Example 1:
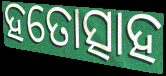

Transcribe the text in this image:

ହତୋତ୍ସାହ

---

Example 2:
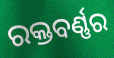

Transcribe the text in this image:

ରକ୍ତବର୍ଣ୍ଣର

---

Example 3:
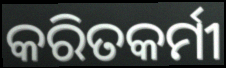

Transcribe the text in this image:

କରିତକର୍ମୀ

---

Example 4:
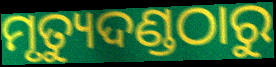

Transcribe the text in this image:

ମୃତ୍ୟୁଦଣ୍ଡଠାରୁ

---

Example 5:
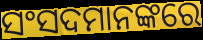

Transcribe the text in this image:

ସଂସଦମାନଙ୍କରେ